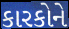
કારકોને